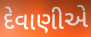
દેવાણીએ